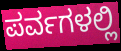
ಪರ್ವಗಳಲ್ಲಿ